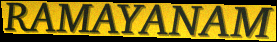
RAMAYANAM